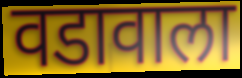
वडावाला